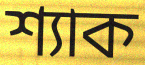
শ্যাক